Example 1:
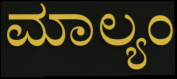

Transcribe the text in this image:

ಮಾಲ್ಯಂ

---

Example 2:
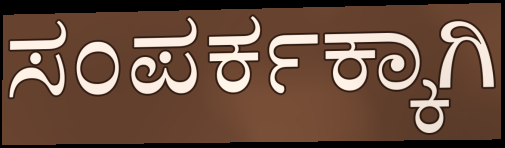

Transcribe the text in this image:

ಸಂಪರ್ಕಕ್ಕಾಗಿ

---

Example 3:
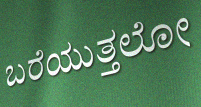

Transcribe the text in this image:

ಬರೆಯುತ್ತಲೋ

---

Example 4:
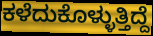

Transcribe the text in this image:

ಕಳೆದುಕೊಳ್ಳುತ್ತಿದ್ದೆ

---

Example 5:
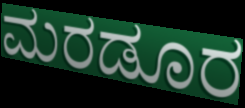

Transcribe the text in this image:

ಮರಡೂರ